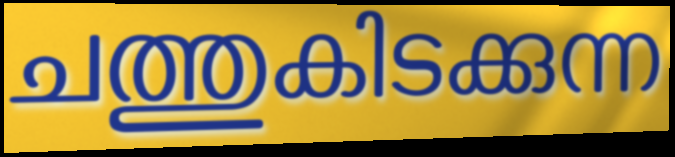
ചത്തുകിടക്കുന്ന